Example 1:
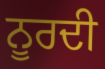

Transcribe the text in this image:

ਨੂਰਦੀ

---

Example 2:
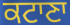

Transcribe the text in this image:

ਕਟਾਣਾ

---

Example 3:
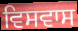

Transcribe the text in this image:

ਵਿਸਵਾਸ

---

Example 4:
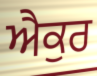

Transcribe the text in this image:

ਐਕੁਰ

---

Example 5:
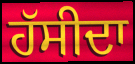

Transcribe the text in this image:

ਹੱਸੀਦਾ